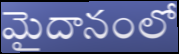
మైదానంలో